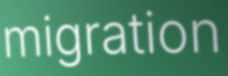
migration